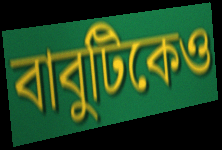
বাবুটিকেও